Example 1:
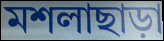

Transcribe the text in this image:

মশলাছাড়া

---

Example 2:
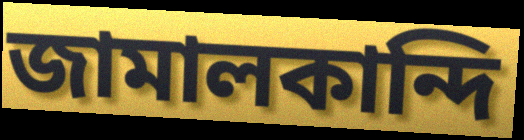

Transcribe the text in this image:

জামালকান্দি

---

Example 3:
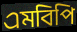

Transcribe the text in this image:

এমবিপি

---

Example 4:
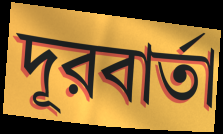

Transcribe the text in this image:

দূরবার্তা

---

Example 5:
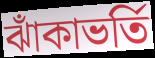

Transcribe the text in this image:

ঝাঁকাভর্তি